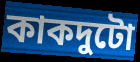
কাকদুটো